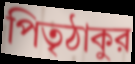
পিতৃঠাকুর